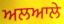
ਅਲਆਲੇ